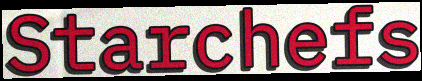
Starchefs